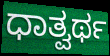
ಧಾತ್ವರ್ಥ